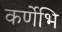
कर्णेभि